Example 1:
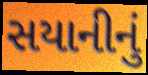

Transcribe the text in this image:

સયાનીનું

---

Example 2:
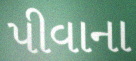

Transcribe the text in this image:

પીવાના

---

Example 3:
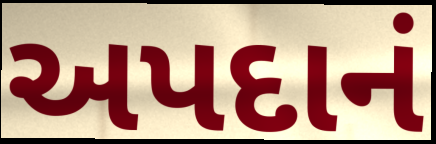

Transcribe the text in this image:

અપદાનં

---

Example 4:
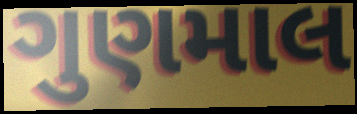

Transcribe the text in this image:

ગુણમાલ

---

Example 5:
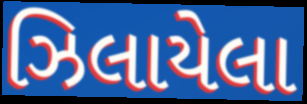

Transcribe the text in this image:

ઝિલાયેલા